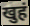
खुहं